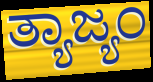
ತ್ಯಾಜ್ಯಂ